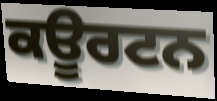
ਕਊਰਟਨ